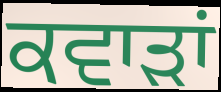
ਕਵਾੜਾਂ